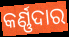
କର୍ଣ୍ଣଦାର